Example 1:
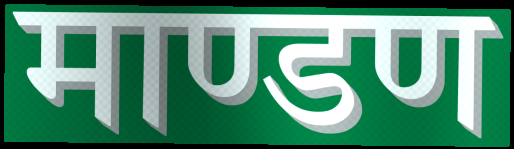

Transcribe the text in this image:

माण्डण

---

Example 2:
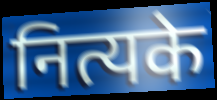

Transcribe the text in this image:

नित्यके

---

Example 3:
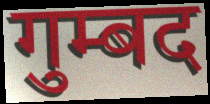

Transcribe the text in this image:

गुम्बद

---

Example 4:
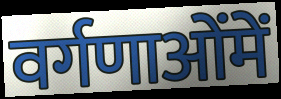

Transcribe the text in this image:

वर्गणाओंमें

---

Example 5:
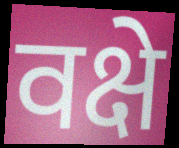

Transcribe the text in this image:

वक्षे